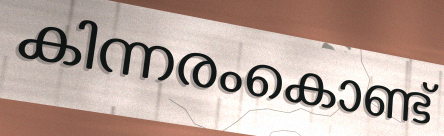
കിന്നരംകൊണ്ട്